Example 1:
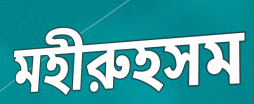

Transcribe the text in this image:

মহীরুহসম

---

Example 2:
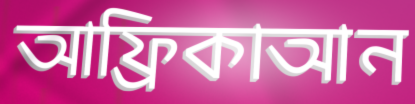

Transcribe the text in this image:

আফ্রিকাআন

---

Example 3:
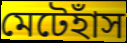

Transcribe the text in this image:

মেটেহাঁস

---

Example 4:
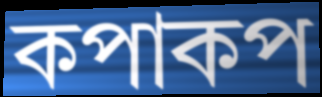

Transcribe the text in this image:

কপাকপ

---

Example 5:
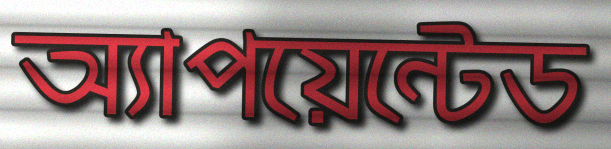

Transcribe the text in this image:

অ্যাপয়েন্টেড